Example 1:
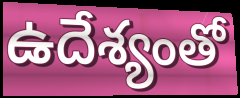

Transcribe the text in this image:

ఉదేశ్యంతో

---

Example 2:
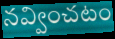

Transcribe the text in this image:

నవ్వించటం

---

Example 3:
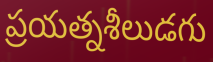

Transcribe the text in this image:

ప్రయత్నశీలుడగు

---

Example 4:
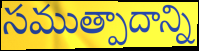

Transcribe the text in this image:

సముత్పాదాన్ని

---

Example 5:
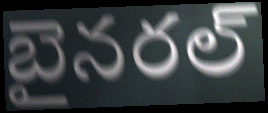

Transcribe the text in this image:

బైనరల్